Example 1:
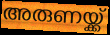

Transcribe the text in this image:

അരുണയ്ക്ക്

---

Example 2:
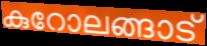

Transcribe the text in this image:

കുറോലങ്ങാട്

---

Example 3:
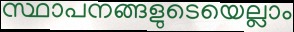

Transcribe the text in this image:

സ്ഥാപനങ്ങളുടെയെല്ലാം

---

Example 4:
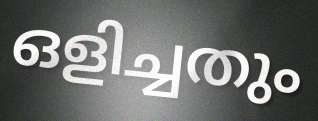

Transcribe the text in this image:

ഒളിച്ചതും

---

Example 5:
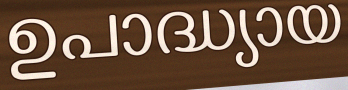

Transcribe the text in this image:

ഉപാദ്ധ്യായ